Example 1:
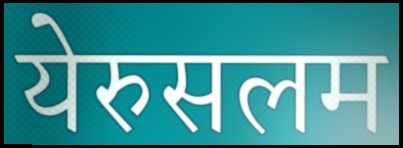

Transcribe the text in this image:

येरुसलम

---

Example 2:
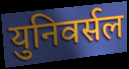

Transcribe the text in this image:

युनिवर्सल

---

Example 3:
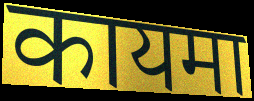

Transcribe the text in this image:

कायमा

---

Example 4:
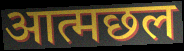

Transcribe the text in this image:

आत्मछल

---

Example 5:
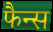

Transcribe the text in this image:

फैन्स